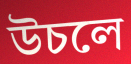
উচলে